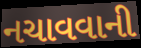
નચાવવાની